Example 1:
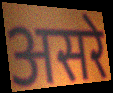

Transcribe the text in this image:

असरे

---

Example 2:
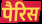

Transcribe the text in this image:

पैरिस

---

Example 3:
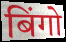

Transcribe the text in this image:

बिंगो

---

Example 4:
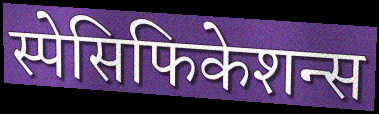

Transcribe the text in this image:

स्पेसिफिकेशन्स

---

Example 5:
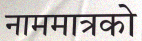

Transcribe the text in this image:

नाममात्रको